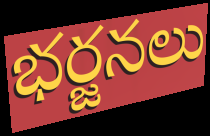
భర్జనలు